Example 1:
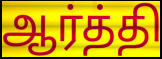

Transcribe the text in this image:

ஆர்த்தி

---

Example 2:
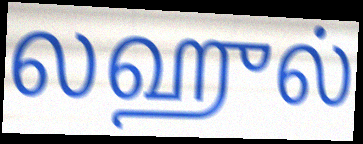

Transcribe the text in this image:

லஹுல்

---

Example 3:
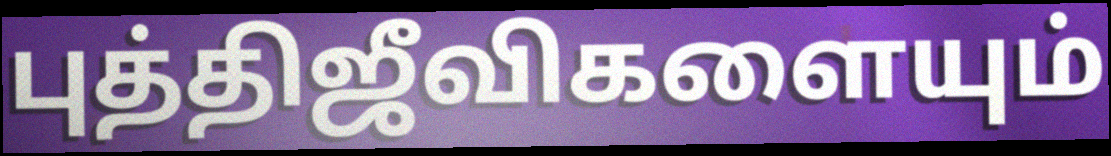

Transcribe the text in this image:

புத்திஜீவிகளையும்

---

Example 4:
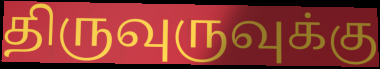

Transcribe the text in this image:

திருவுருவுக்கு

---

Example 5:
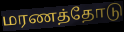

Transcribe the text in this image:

மரணத்தோடு